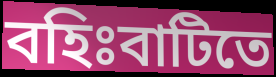
বহিঃবাটিতে